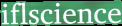
iflscience